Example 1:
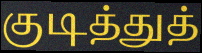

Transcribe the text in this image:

குடித்துத்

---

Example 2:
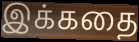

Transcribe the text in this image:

இக்கதை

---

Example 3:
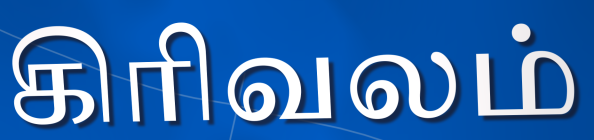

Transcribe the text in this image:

கிரிவலம்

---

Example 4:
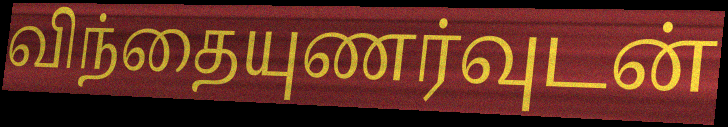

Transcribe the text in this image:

விந்தையுணர்வுடன்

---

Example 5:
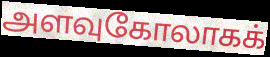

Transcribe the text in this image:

அளவுகோலாகக்